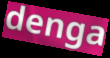
denga